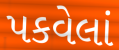
પકવેલાં